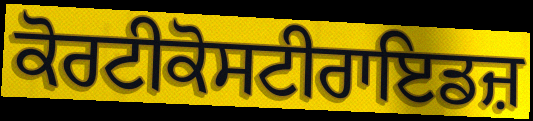
ਕੋਰਟੀਕੋਸਟੀਰਾਇਡਜ਼